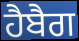
ਹੈਬੈਗ